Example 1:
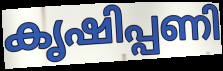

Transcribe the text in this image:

കൃഷിപ്പണി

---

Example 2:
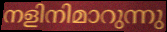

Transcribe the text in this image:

നളിനിമാറുന്നു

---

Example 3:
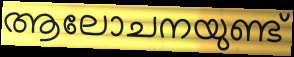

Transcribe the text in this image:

ആലോചനയുണ്ട്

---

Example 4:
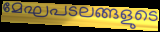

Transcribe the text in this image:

മേഘപടലങ്ങളുടെ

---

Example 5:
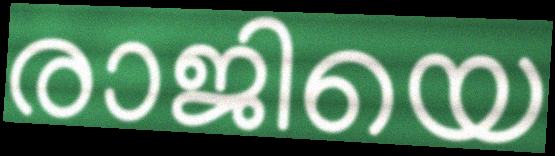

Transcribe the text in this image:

രാജിയെ